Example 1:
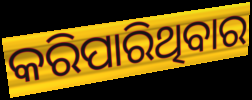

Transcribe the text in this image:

କରିପାରିଥିବାର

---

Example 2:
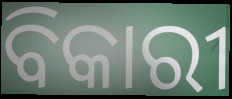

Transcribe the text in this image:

ବିକାରୀ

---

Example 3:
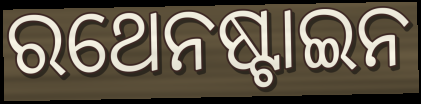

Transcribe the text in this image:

ରଥେନଷ୍ଟାଇନ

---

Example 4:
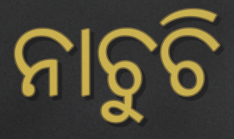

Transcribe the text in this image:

ନାଚୁଚି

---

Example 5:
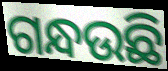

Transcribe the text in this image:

ଗନ୍ଧଉଛି